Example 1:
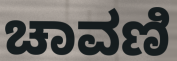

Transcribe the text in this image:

ಚಾವಣಿ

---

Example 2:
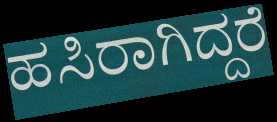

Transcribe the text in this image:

ಹಸಿರಾಗಿದ್ದರೆ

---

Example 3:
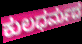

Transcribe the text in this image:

ಕುಲಧರ್ಮದ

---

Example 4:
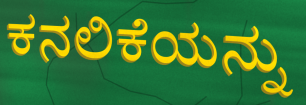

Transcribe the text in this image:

ಕನಲಿಕೆಯನ್ನು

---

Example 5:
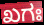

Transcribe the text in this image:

ಖಗಃ